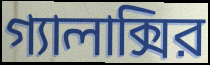
গ্যালাক্সির